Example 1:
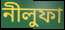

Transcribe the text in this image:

নীলুফা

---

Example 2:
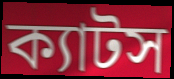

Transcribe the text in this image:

ক্যাটস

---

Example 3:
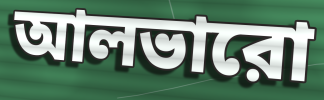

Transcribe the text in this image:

আলভারো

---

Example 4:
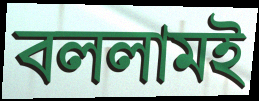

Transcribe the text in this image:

বললামই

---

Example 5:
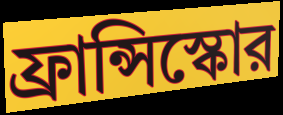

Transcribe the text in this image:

ফ্রান্সিস্কোর